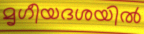
മൃഗീയദശയിൽ